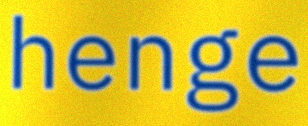
henge